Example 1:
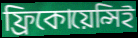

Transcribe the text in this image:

ফ্রিকোয়েন্সিই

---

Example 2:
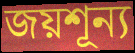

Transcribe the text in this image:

জয়শূন্য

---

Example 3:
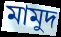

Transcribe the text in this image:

মামুদ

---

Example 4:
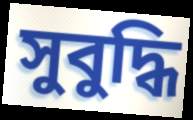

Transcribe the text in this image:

সুবুদ্ধি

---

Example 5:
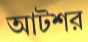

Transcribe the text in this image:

আটশর